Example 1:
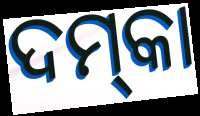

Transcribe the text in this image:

ଦମ୍‌କା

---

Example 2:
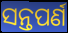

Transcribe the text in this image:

ସନ୍ତପର୍ଣ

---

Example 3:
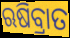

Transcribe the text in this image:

ଋଷିବ୍ରାତ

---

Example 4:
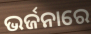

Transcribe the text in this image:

ଭର୍ଜନାରେ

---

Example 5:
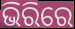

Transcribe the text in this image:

ଭିରିରେ